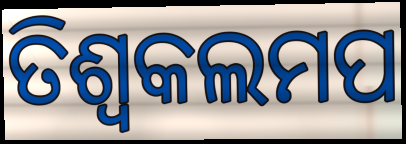
ତିଶ୍ୱକଲମପ